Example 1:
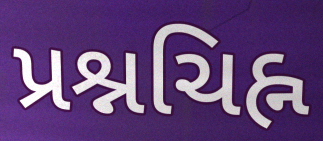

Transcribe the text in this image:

પ્રશ્નચિહ્ન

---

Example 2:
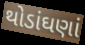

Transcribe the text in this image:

થોડાંઘણાં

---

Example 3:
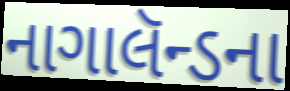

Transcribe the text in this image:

નાગાલૅન્ડના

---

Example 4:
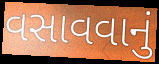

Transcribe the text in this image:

વસાવવાનું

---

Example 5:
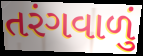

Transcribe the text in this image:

તરંગવાળું